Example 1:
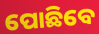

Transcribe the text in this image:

ପୋଛିବେ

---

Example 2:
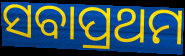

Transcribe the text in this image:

ସବାପ୍ରଥମ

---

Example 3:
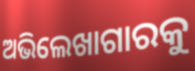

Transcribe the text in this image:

ଅଭିଲେଖାଗାରକୁ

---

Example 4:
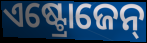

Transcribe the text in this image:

ଏଷ୍ଟ୍ରୋଜେନ୍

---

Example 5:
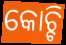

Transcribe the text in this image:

କୋଚ୍ଚି